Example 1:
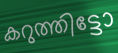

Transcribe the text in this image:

കറുത്തിട്ടോ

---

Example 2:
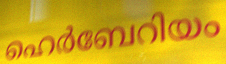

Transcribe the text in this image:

ഹെർബേറിയം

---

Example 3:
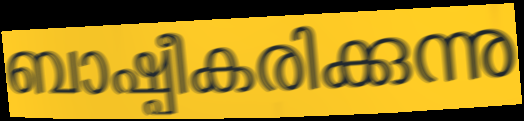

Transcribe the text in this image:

ബാഷ്പീകരിക്കുന്നു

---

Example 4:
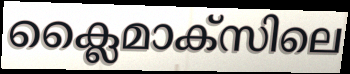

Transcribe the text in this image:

ക്ലൈമാക്സിലെ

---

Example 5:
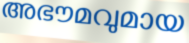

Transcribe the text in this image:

അഭൗമവുമായ